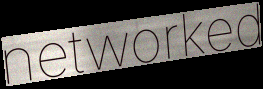
networked